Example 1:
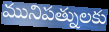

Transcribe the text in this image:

మునిపత్నులకు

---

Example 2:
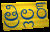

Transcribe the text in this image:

త్రిల్లర్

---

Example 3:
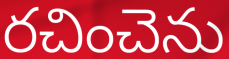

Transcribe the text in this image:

రచించెను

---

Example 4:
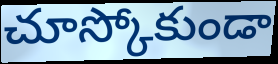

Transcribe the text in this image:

చూస్కోకుండా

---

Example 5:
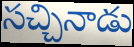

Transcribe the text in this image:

సచ్చినాడు